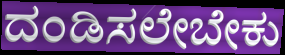
ದಂಡಿಸಲೇಬೇಕು